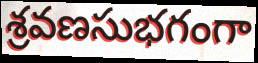
శ్రవణసుభగంగా